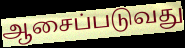
ஆசைப்படுவது